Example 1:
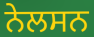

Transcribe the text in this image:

ਨੇਲਸਨ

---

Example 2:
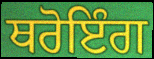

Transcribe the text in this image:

ਥਰੋਇੰਗ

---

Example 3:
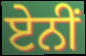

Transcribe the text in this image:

ਏਨੀਂ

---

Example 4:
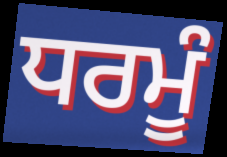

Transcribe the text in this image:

ਧਰਮੂੰ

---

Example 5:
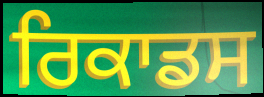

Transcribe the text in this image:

ਰਿਕਾਡਸ